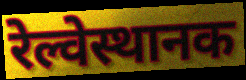
रेल्वेस्थानक